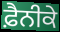
ਫ਼ੈਨੀਕੇ